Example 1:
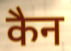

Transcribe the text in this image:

कैन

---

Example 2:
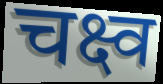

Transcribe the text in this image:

चक्ष्व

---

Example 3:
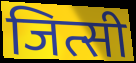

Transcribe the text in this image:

जित्सी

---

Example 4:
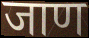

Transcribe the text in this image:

जाण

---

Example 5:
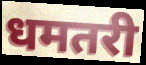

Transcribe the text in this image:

धमतरी